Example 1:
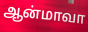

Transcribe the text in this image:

ஆன்மாவா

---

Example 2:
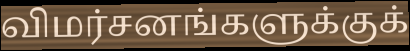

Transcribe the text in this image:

விமர்சனங்களுக்குக்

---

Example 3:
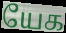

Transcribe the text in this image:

யேக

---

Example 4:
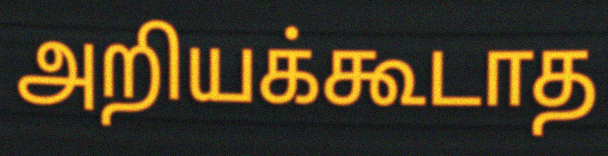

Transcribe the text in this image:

அறியக்கூடாத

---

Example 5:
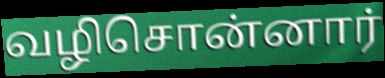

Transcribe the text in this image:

வழிசொன்னார்